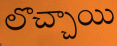
లొచ్చాయి